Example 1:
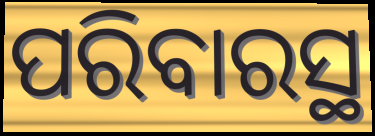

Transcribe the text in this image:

ପରିବାରସ୍ଥ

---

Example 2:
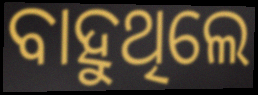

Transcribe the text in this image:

ବାହୁଥିଲେ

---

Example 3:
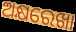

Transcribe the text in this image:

ଅକ୍ଷରେଖା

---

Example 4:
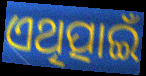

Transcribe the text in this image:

ଏଥିତ୍ପାଇଁ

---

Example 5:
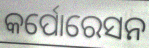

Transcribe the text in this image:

କର୍ପୋରେସନ